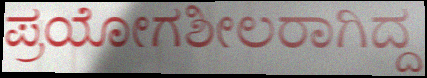
ಪ್ರಯೋಗಶೀಲರಾಗಿದ್ದ